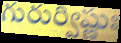
గురుర్విష్ణుః